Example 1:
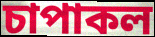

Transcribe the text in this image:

চাপাকল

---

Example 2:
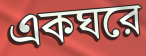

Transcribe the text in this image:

একঘরে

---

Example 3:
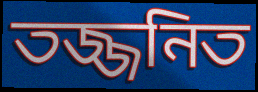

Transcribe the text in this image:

তজ্জনিত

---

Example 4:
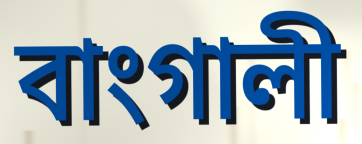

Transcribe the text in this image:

বাংগালী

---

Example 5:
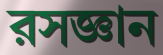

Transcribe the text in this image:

রসজ্ঞান